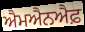
ਐਮਐਨਐਫ਼